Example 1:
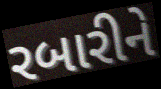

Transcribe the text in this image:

રબારીને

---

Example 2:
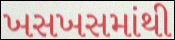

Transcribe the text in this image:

ખસખસમાંથી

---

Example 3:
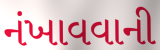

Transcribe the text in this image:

નંખાવવાની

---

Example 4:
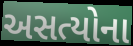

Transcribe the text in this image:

અસત્યોના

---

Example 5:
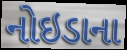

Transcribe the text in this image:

નોઇડાના